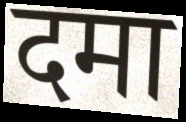
दमा